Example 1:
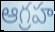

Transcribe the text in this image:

ఆగ్రహ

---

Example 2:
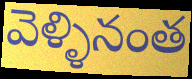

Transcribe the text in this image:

వెళ్ళినంత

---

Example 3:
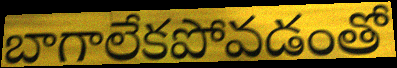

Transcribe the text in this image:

బాగాలేకపోవడంతో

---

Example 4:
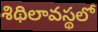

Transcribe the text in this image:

శిథిలావస్థలో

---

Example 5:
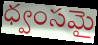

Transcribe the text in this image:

ధ్వంసమై